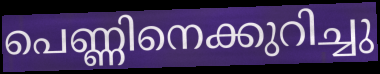
പെണ്ണിനെക്കുറിച്ചു